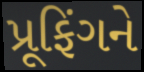
પ્રૂફિંગને